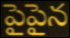
పైపైన